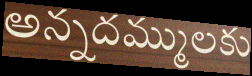
అన్నదమ్ములకు